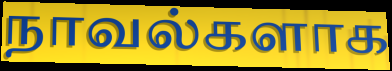
நாவல்களாக